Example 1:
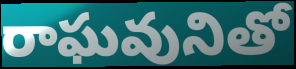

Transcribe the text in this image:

రాఘవునితో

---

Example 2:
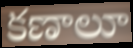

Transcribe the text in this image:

కణాలూ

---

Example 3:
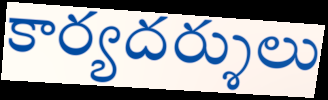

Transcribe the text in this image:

కార్యదర్శులు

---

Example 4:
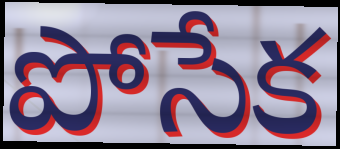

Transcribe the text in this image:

పోసేక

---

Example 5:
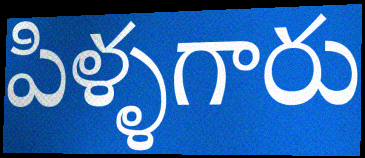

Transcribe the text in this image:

పిళ్ళగారు